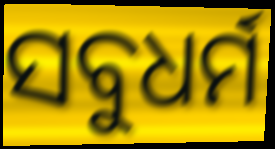
ସବୁଧର୍ମ